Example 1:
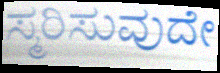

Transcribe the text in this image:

ಸ್ಮರಿಸುವುದೇ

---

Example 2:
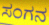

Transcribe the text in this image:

ಸಂಗನ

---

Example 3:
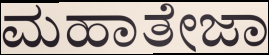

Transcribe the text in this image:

ಮಹಾತೇಜಾ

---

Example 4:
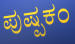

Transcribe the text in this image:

ಪುಷ್ಪಕಂ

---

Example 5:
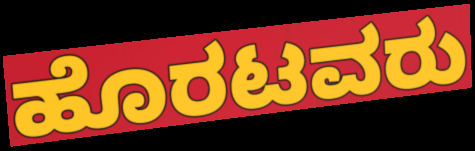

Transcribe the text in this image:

ಹೊರಟವರು